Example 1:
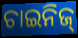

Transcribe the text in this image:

ଚାଇନିଜ୍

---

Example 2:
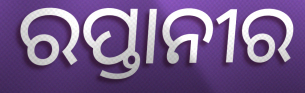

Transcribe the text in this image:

ରପ୍ତାନୀର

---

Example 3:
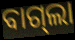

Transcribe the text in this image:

ବାଗ୍‍ଲା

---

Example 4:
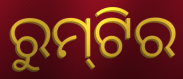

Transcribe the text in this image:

ରୁମ୍‌ଟିର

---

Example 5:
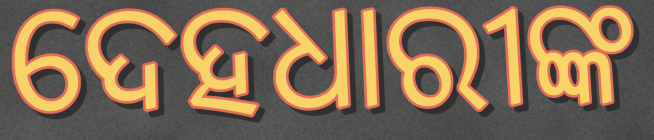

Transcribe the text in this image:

ଦେହଧାରୀଙ୍କ